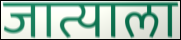
जात्याला